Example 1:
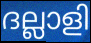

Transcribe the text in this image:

ദല്ലാളി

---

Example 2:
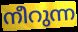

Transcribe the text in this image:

നീറുന്ന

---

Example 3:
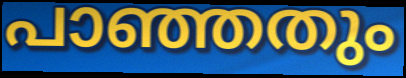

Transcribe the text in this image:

പാഞ്ഞതും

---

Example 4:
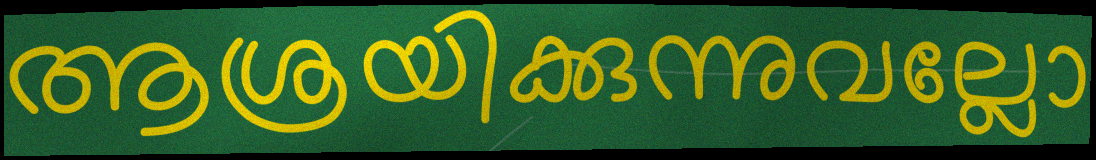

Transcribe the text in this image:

ആശ്രയിക്കുന്നുവല്ലോ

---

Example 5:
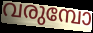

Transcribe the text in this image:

വരുമ്പോ